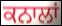
ਕਨਾਲਾਂ